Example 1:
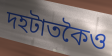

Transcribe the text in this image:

দহটাতকৈও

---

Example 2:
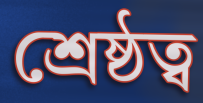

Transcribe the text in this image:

শ্ৰেষ্ঠত্ব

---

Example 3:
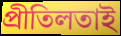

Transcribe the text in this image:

প্ৰীতিলতাই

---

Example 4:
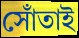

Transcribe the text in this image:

সোঁতাই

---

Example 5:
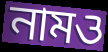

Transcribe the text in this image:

নামও